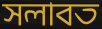
সলাবত